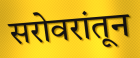
सरोवरांतून